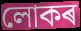
লোকৰ